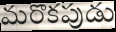
మరొకపుడు